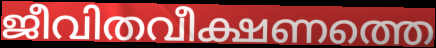
ജീവിതവീക്ഷണത്തെ